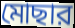
মোছার